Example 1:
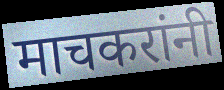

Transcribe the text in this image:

माचकरांनी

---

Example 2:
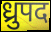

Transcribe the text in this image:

ध्रुपद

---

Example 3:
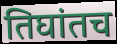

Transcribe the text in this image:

तिघांतच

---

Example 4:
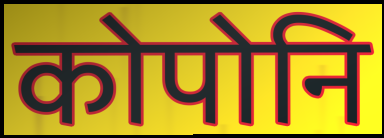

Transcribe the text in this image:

कोपोनि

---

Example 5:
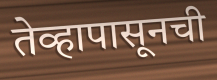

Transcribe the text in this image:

तेव्हापासूनची